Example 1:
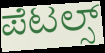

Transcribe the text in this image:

ಪೆಟಲ್ಸ್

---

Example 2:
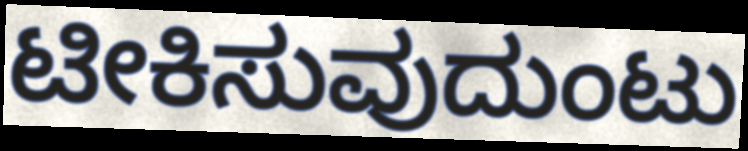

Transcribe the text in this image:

ಟೀಕಿಸುವುದುಂಟು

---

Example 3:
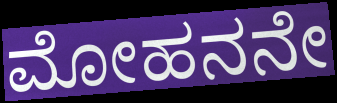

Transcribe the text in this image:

ಮೋಹನನೇ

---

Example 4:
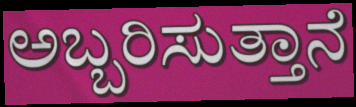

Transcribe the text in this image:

ಅಬ್ಬರಿಸುತ್ತಾನೆ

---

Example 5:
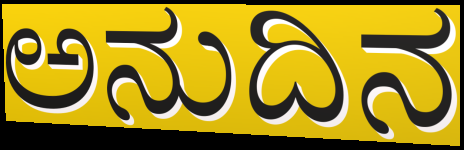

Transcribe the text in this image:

ಅನುದಿನ